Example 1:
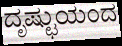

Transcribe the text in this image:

ದೃಷ್ಟುಯಂದ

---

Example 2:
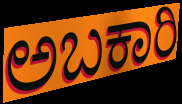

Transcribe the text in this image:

ಅಬಕಾರಿ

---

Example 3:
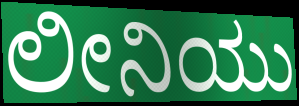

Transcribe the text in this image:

ಲೀನಿಯು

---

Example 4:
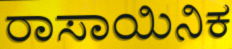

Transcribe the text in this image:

ರಾಸಾಯಿನಿಕ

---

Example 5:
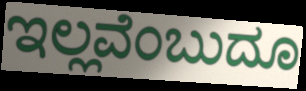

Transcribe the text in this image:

ಇಲ್ಲವೆಂಬುದೂ